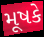
મૂષકે